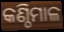
କଣ୍ଠିମାଳ